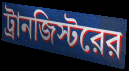
ট্রানজিস্টরের